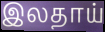
இலதாய்